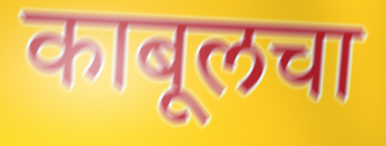
काबूलचा